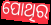
ପୋଥିର